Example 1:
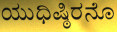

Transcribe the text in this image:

ಯುಧಿಷ್ಠಿರನೊ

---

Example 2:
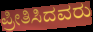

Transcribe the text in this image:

ಪ್ರೀತಿಸಿದವರು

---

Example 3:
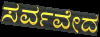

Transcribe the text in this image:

ಸರ್ವವೇದ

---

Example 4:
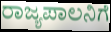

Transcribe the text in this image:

ರಾಜ್ಯಪಾಲನಿಗೆ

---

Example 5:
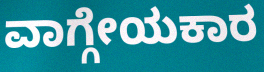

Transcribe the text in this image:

ವಾಗ್ಗೇಯಕಾರ